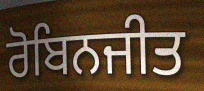
ਰੋਬਿਨਜੀਤ